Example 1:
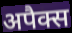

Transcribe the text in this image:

अपैक्स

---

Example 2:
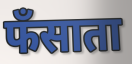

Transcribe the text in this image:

फँसाता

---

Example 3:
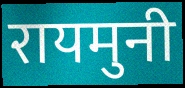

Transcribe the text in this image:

रायमुनी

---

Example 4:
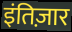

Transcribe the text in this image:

इंतिज़ार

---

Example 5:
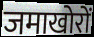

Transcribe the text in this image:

जमाखोरों